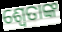
ଶ୍ୱେତାଙ୍କ